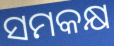
ସମକକ୍ଷ